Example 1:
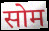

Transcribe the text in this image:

सोम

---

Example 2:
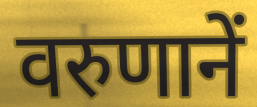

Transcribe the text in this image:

वरुणानें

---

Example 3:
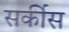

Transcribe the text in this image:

सर्कीस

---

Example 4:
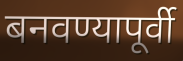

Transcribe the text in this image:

बनवण्यापूर्वी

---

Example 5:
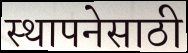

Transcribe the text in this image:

स्थापनेसाठी